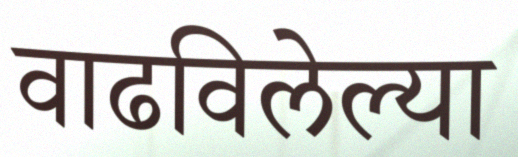
वाढविलेल्या